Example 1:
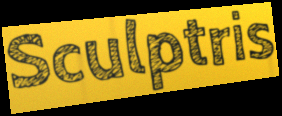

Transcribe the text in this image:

Sculptris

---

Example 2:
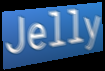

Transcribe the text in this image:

Jelly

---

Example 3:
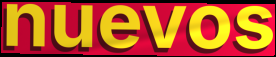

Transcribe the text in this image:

nuevos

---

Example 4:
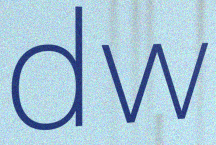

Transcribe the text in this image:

dw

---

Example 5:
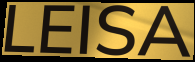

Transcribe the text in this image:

LEISA